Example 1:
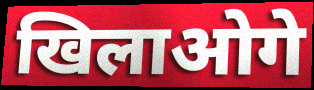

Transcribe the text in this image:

खिलाओगे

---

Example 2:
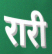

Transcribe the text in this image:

रारी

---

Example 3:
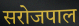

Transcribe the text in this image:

सरोजपाल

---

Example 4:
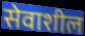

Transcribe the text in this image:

सेवाशील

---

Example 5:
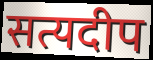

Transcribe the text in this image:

सत्यदीप